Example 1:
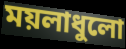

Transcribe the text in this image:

ময়লাধুলো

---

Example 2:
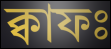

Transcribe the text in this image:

ক্বাফঃ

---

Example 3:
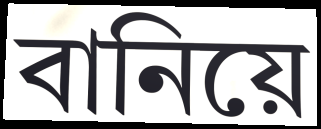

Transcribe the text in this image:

বানিয়ে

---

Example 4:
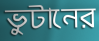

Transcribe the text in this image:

ভুটানের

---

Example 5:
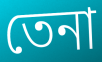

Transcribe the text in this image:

তেনা